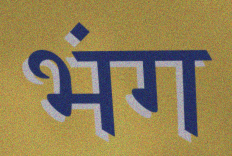
भंग